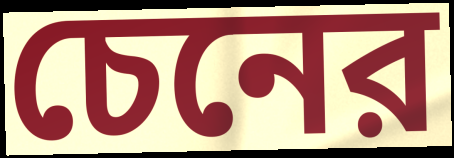
চেনের